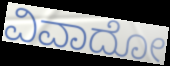
ವಿವಾದೋ